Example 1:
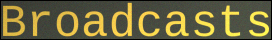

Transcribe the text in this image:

Broadcasts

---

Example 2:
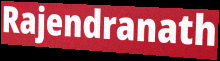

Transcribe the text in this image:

Rajendranath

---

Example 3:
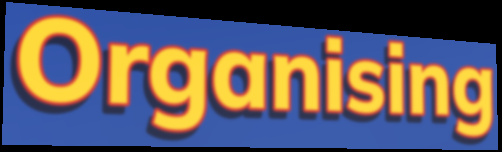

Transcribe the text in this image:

Organising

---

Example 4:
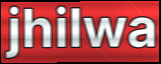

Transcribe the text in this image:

jhilwa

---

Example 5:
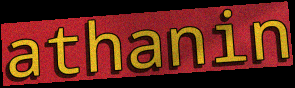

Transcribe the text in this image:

athanin